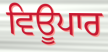
ਵਿਊਪਾਰ